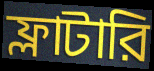
ফ্লাটারি